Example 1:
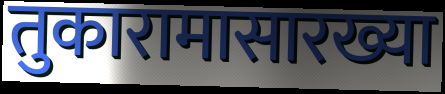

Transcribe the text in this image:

तुकारामासारख्या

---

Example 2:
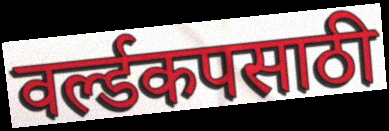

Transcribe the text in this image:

वर्ल्डकपसाठी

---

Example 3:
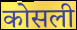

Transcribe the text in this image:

कोसली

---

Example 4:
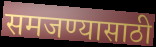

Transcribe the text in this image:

समजण्यासाठी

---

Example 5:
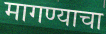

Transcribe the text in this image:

मागण्याचा